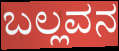
ಬಲ್ಲವನ